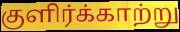
குளிர்க்காற்று